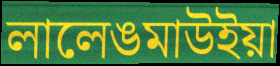
লালেঙমাউইয়া